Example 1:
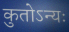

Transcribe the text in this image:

कुतोऽन्यः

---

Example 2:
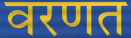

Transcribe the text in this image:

वरणत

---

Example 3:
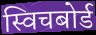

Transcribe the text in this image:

स्विचबोर्ड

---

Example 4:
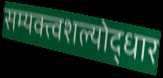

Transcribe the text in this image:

सम्यक्त्वशल्योद्धार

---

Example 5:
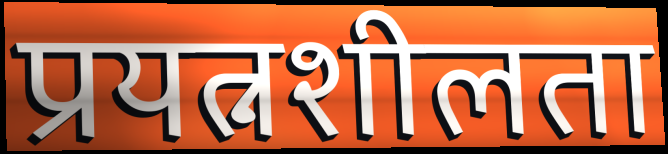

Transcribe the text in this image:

प्रयत्नशीलता